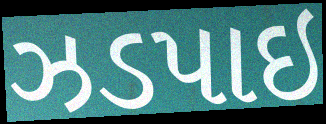
ઝડપાઇ